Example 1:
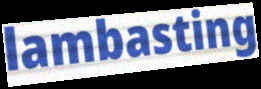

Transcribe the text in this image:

lambasting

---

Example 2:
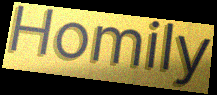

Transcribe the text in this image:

Homily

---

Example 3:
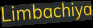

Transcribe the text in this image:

Limbachiya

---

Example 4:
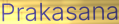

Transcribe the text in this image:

Prakasana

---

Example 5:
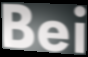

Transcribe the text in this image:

Bei